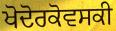
ਖੋਦੋਰਕੋਵਸਕੀ